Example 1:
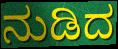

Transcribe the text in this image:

ನುಡಿದ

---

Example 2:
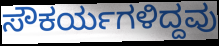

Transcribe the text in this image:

ಸೌಕರ್ಯಗಳಿದ್ದವು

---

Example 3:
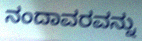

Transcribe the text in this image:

ನಂದಾವರವನ್ನು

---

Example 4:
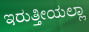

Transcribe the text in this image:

ಇರುತ್ತೀಯಲ್ಲಾ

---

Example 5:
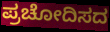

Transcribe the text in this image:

ಪ್ರಚೋದಿಸದ